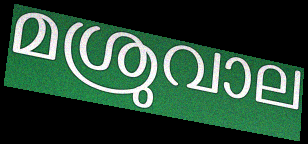
മശ്രുവാല